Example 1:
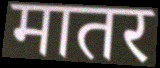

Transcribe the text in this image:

मातर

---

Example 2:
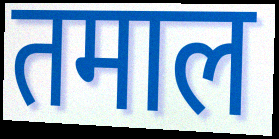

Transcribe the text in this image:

तमाल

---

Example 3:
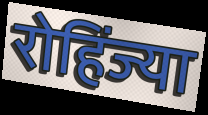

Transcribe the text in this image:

रोहिंज्या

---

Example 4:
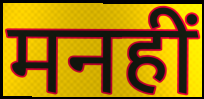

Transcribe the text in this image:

मनहीं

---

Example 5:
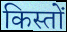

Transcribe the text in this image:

किस्तों